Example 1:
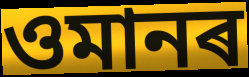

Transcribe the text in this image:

ওমানৰ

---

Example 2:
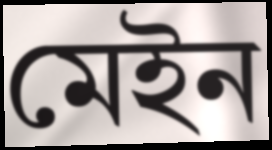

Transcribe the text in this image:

মেইন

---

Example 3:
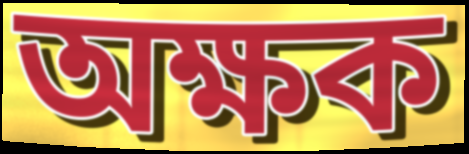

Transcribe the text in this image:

অক্ষক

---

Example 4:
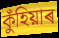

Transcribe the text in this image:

কুঁহিয়াৰ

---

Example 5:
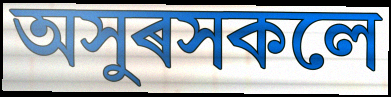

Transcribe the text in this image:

অসুৰসকলে